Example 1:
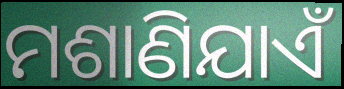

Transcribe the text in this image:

ମଶାଣିଯାଏଁ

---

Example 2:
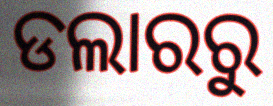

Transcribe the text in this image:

ଡଲାରରୁ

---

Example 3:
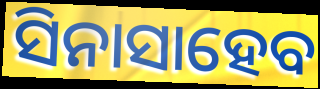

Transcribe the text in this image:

ସିନାସାହେବ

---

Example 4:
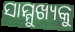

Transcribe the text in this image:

ସାମ୍ମୁଖ୍ୟକୁ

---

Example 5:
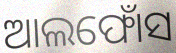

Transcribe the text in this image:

ଆଲଫୋଁସ